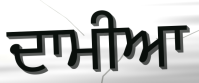
ਦਾਮੀਆ